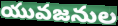
యువజనుల